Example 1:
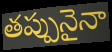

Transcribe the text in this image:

తప్పునైనా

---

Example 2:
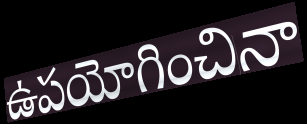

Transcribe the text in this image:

ఉపయోగించినా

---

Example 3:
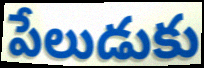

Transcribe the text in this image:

పేలుడుకు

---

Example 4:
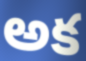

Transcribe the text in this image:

అక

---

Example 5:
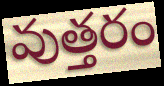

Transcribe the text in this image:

వుత్తరం